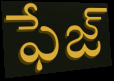
ఫేజ్